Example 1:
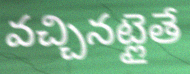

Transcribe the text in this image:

వచ్చినట్లైతే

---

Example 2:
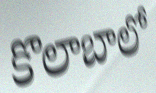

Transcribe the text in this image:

కొలాబాలో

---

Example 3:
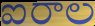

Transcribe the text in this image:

ఐరాల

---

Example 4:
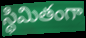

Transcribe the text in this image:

స్థిమితంగా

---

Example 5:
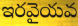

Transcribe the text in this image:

ఇరవైయవ